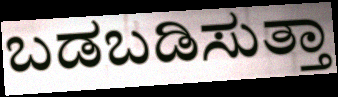
ಬಡಬಡಿಸುತ್ತಾ